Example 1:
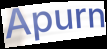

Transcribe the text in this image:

Apurn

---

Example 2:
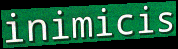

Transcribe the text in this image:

inimicis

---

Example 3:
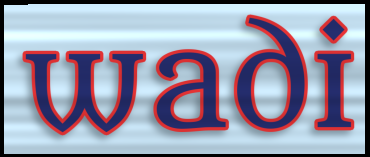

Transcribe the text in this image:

wadi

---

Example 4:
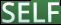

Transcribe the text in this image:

SELF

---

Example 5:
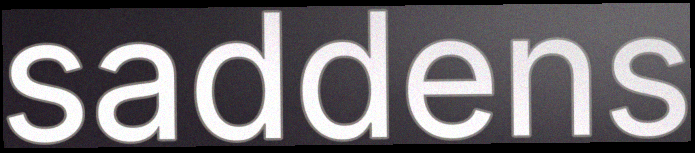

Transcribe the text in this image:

saddens